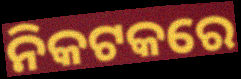
ନିକଟକରେ